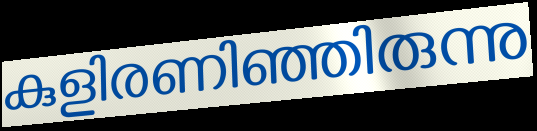
കുളിരണിഞ്ഞിരുന്നു